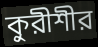
কুরীশীর